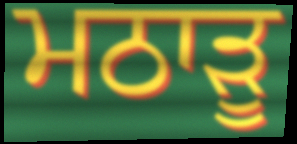
ਮਠਾੜੂ